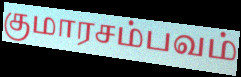
குமாரசம்பவம்